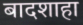
बादशाहा